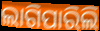
ଲାଗିପାରିଲି